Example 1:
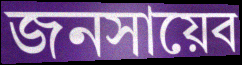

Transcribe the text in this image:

জনসায়েব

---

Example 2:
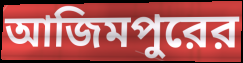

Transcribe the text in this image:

আজিমপুরের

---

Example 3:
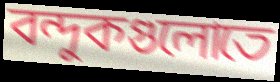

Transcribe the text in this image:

বন্দুকগুলোতে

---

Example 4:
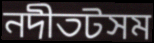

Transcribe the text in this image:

নদীতটসম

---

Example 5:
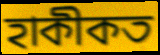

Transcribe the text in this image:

হাকীকত